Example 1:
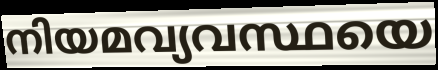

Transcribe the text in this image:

നിയമവ്യവസ്ഥയെ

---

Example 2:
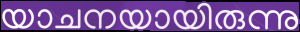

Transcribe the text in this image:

യാചനയായിരുന്നു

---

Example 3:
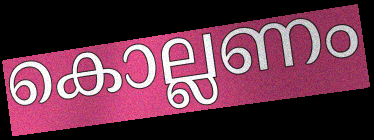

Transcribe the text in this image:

കൊല്ലണം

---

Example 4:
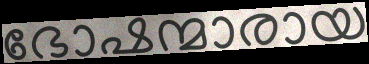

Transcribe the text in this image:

ഭോഷന്മാരായ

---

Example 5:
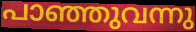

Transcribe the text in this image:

പാഞ്ഞുവന്നു